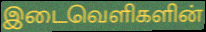
இடைவெளிகளின்